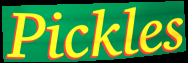
Pickles